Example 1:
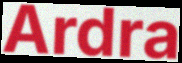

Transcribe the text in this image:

Ardra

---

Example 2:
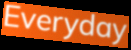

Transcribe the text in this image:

Everyday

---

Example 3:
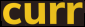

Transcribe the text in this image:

curr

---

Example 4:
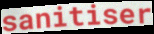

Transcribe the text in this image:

sanitiser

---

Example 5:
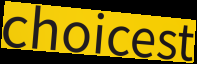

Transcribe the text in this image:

choicest